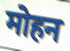
मोहन